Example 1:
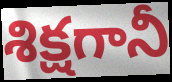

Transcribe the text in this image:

శిక్షగానీ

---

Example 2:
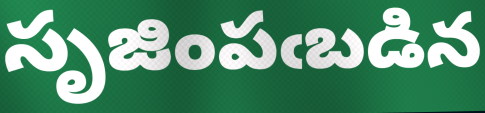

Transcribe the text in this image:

సృజింపఁబడిన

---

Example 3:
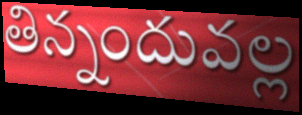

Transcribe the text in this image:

తిన్నందువల్ల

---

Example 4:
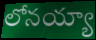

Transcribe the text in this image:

లోనయ్యా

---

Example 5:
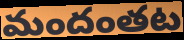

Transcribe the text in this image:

మందంతట